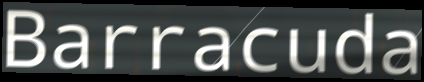
Barracuda